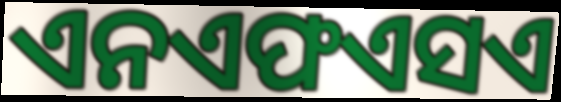
ଏନଏଫଏସଏ